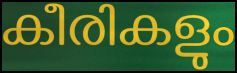
കീരികളും